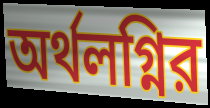
অর্থলগ্নির